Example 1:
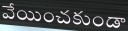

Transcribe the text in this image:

వేయించకుండా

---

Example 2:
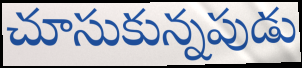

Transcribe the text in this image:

చూసుకున్నపుడు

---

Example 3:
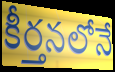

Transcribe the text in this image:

కీర్తనలోనే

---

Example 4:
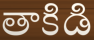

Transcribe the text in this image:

తాకిడి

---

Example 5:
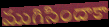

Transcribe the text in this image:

ముగిసిందాకా